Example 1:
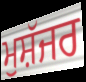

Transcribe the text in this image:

ਮੁਸ਼ੱਜਰ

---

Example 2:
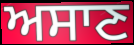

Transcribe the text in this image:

ਅਸਾਣ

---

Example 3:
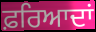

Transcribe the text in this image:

ਫ਼ਰਿਆਦਾਂ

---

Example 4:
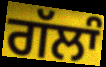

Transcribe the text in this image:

ਗੱਲਾੰ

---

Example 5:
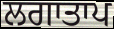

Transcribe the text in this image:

ਲਗਾਤਾਪ